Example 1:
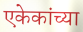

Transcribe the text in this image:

एकेकांच्या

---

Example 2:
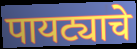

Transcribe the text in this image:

पायट्याचे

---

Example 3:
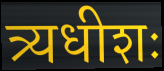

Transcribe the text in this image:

त्र्यधीशः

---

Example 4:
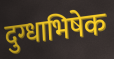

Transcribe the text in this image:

दुग्धाभिषेक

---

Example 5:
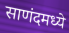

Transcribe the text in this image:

साणंदमध्ये